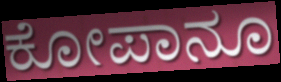
ಕೋಪಾನೂ